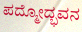
ಪದ್ಮೋದ್ಭವನ